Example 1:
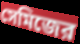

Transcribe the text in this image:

সেমিজের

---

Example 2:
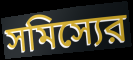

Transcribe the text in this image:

সমিস্যের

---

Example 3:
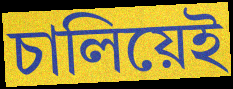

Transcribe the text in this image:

চালিয়েই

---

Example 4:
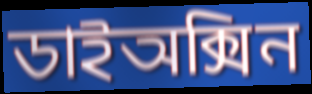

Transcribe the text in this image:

ডাইঅক্সিন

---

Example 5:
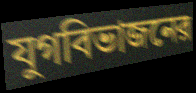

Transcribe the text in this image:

যুগবিভাজনের